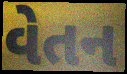
વેતન